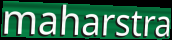
maharstra